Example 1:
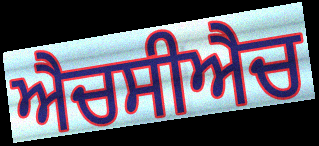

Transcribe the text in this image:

ਐਚਸੀਐਚ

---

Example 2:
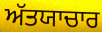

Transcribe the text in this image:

ਅੱਤਯਾਚਾਰ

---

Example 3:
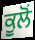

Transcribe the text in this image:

ਕੂਲੋਂ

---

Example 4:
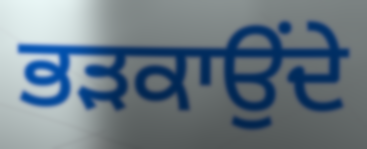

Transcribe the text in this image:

ਭੜਕਾਉਂਦੇ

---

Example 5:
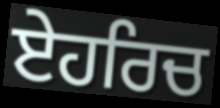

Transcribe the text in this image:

ਏਹਰਿਚ